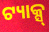
ଟ୍ୟାକ୍ସ୍